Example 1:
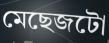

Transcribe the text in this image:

মেছেজটো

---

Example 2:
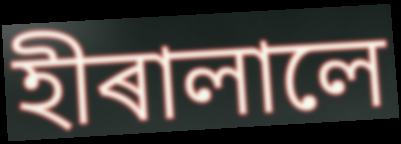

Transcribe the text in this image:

হীৰালালে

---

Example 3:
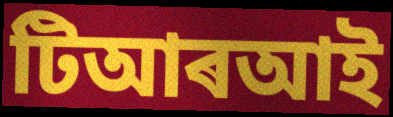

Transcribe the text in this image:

টিআৰআই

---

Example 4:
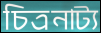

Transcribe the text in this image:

চিত্ৰনাট্য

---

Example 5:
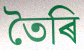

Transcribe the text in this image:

তৈৰি